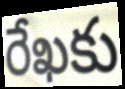
రేఖకు